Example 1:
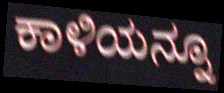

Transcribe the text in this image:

ಕಾಳಿಯನ್ನೂ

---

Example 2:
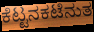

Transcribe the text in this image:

ಕೆಟ್ಟನಕಟೆನುತ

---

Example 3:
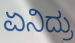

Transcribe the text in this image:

ಏನಿದ್ರು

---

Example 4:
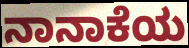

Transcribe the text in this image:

ನಾನಾಕೆಯ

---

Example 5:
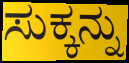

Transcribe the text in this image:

ಸುಕ್ಕನ್ನು